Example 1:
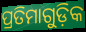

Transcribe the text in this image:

ପ୍ରତିମାଗୁଡ଼ିକ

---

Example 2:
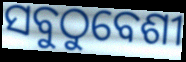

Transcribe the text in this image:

ସବୁଠୁବେଶୀ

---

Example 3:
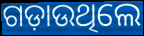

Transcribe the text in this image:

ଗଡ଼ାଉଥିଲେ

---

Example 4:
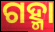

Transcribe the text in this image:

ଗହ୍ମା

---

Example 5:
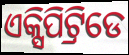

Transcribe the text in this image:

ଏକ୍ସିପିଟ୍ରିଡେ